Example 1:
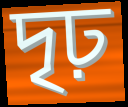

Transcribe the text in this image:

দৃঢ়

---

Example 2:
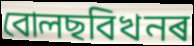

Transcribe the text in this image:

বোলছবিখনৰ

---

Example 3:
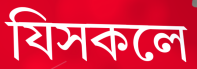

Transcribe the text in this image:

যিসকলে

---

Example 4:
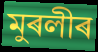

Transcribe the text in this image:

মুৰলীৰ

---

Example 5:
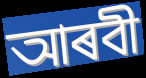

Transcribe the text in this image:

আৰবী